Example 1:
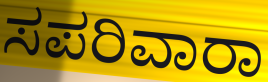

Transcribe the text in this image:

ಸಪರಿವಾರಾ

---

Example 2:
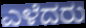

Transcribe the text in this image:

ಎಳೆದರು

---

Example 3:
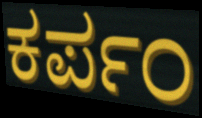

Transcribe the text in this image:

ಕರ್ಪಂ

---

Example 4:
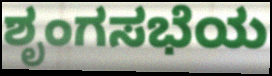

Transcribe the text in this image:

ಶೃಂಗಸಭೆಯ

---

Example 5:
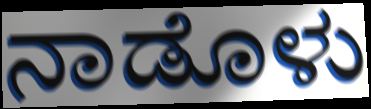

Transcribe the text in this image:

ನಾಡೊಳು